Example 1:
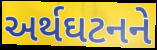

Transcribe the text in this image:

અર્થઘટનને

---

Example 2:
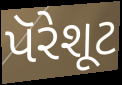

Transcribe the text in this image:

પૅરેશૂટ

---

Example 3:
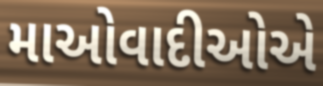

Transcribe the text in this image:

માઓવાદીઓએ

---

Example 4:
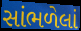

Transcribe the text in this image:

સાંભળેલાં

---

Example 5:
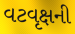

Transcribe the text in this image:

વટવૃક્ષની